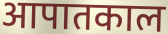
आपातकाल